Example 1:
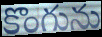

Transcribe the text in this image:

కొంగును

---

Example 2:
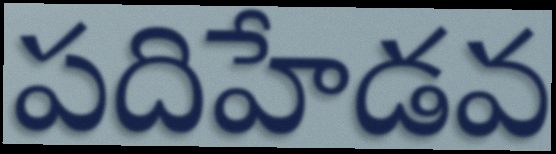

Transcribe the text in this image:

పదిహేడవ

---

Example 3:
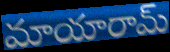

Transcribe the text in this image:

మాయారామ్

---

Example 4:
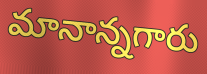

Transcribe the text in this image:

మానాన్నగారు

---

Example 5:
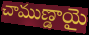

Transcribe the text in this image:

చాముణ్డాయై